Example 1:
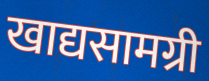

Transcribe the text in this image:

खाद्यसामग्री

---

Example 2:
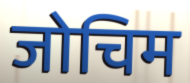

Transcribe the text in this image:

जोचिम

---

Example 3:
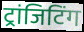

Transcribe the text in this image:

ट्रांजिटिंग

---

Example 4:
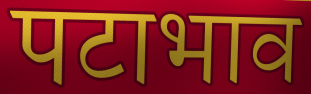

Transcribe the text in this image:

पटाभाव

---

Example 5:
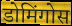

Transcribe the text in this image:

डोमिंगोस